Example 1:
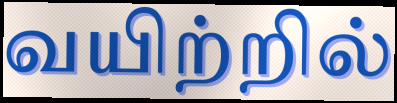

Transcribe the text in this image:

வயிற்றில்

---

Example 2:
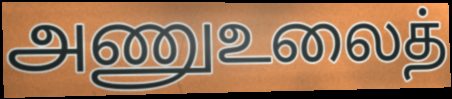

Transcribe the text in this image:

அணுஉலைத்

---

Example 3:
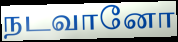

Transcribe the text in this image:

நடவானோ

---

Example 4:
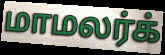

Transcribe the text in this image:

மாமலர்க்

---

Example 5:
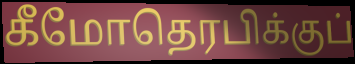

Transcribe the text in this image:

கீமோதெரபிக்குப்